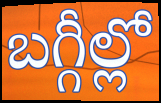
బగ్గీల్లో